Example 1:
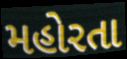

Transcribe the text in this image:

મહોરતા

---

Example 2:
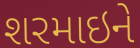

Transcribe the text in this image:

શરમાઇને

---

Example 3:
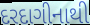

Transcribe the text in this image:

દરદાગીનાથી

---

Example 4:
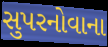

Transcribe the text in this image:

સુપરનોવાના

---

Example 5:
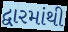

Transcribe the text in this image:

દ્વારમાંથી